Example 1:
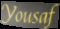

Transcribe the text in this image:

Yousaf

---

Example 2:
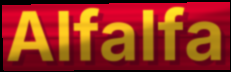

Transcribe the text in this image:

Alfalfa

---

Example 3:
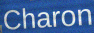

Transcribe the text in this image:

Charon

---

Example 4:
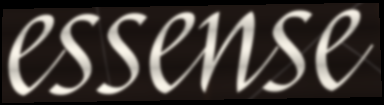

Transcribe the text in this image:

essense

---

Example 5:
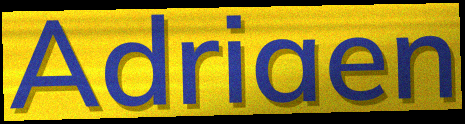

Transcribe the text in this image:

Adriaen